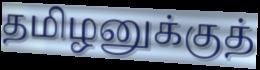
தமிழனுக்குத்